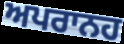
ਅਪਰਾਨਹ